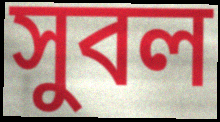
সুবল